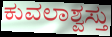
ಕುವಲಾಶ್ವಸ್ತು